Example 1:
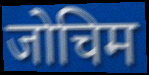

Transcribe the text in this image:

जोचिम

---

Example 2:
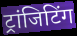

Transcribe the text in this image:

ट्रांजिटिंग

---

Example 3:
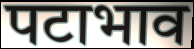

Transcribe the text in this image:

पटाभाव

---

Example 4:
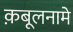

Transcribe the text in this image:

क़बूलनामे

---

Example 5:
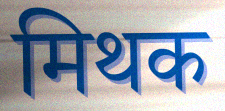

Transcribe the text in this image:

मिथक